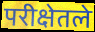
परीक्षेतले